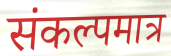
संकल्पमात्र